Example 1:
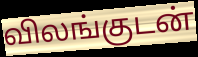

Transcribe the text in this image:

விலங்குடன்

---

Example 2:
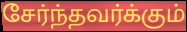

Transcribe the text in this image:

சேர்ந்தவர்க்கும்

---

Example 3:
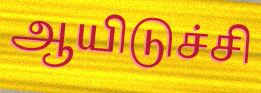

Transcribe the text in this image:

ஆயிடுச்சி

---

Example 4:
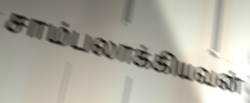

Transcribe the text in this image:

சாம்பலாக்கியவன்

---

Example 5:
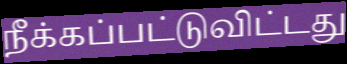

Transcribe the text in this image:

நீக்கப்பட்டுவிட்டது